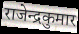
राजेन्द्रकुमार